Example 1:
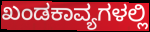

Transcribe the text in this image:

ಖಂಡಕಾವ್ಯಗಳಲ್ಲಿ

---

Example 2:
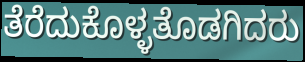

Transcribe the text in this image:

ತೆರೆದುಕೊಳ್ಳತೊಡಗಿದರು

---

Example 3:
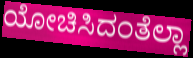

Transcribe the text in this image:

ಯೋಚಿಸಿದಂತೆಲ್ಲಾ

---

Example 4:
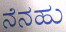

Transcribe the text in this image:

ನೆನಹು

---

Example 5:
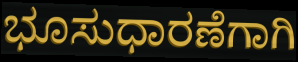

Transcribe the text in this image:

ಭೂಸುಧಾರಣೆಗಾಗಿ